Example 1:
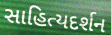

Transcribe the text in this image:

સાહિત્યદર્શન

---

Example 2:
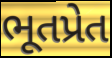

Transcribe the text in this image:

ભૂતપ્રેત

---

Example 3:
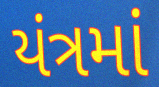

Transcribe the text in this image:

યંત્રમાં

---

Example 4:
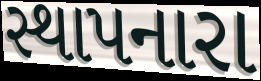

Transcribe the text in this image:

સ્થાપનારા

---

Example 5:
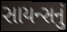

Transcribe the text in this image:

સાયન્સનું